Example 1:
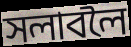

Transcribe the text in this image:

সলাবলৈ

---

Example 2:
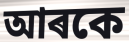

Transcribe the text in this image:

আৰকে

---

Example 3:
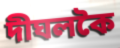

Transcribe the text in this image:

দীঘলকৈ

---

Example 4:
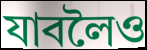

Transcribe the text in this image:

যাবলৈও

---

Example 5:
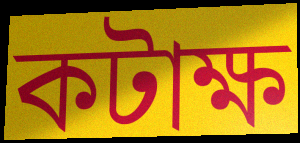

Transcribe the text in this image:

কটাক্ষ